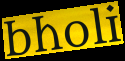
bholi